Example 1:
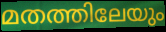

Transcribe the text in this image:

മതത്തിലേയും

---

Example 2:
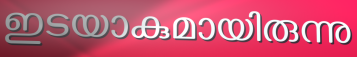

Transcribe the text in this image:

ഇടയാകുമായിരുന്നു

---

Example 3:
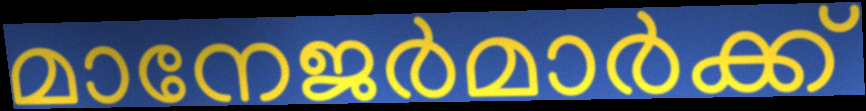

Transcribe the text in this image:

മാനേജർമാർക്ക്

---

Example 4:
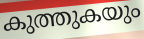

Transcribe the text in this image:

കുത്തുകയും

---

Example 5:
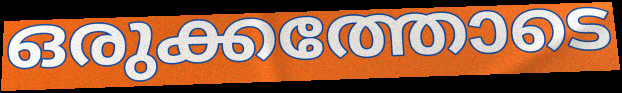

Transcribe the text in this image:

ഒരുക്കത്തോടെ